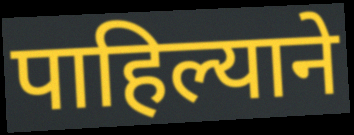
पाहिल्याने